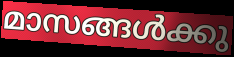
മാസങ്ങൾക്കു